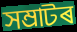
সম্ৰাটৰ